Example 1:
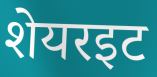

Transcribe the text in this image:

शेयरइट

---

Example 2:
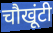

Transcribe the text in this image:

चौखूंटी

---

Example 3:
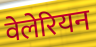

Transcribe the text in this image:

वेलेरियन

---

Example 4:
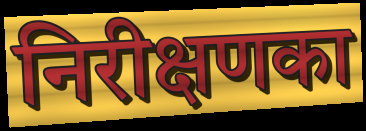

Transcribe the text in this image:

निरीक्षणका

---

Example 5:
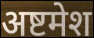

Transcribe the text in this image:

अष्टमेश